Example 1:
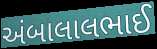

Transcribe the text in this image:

અંબાલાલભાઈ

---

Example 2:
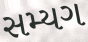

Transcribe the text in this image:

સમ્યગ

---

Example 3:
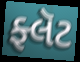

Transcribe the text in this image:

ફ્લૅટ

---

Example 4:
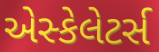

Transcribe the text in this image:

એસ્કેલેટર્સ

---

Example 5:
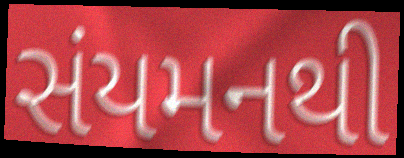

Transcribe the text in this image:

સંયમનથી